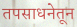
तपसाधनेतून